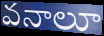
వనాలూ